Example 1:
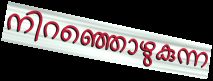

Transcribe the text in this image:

നിറഞ്ഞൊഴുകുന്ന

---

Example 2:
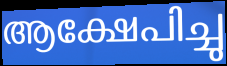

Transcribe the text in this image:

ആക്ഷേപിച്ചു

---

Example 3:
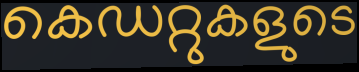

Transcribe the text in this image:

കെഡറ്റുകളുടെ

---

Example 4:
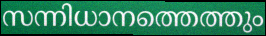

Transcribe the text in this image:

സന്നിധാനത്തെത്തും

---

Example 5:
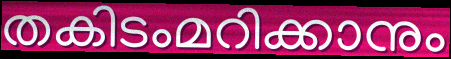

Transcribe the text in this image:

തകിടംമറിക്കാനും